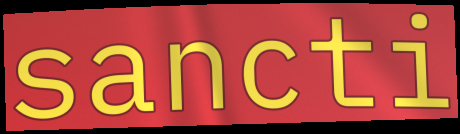
sancti